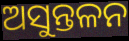
ଅସୁନ୍ତଳନ